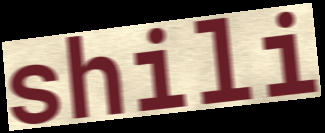
shili